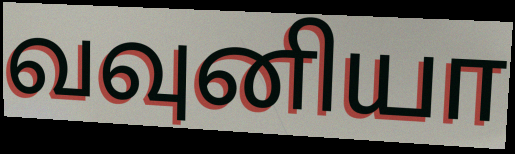
வவுனியா